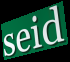
seid